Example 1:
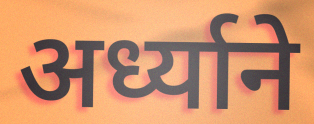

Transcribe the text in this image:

अर्ध्याने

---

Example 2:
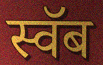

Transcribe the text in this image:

स्वॅब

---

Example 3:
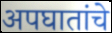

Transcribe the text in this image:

अपघातांचे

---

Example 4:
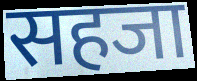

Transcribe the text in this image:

सहजा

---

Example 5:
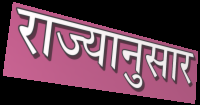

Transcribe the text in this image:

राज्यानुसार